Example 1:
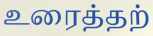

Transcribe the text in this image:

உரைத்தற்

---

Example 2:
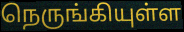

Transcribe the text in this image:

நெருங்கியுள்ள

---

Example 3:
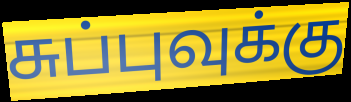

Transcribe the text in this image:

சுப்புவுக்கு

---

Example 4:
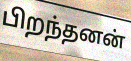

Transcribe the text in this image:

பிறந்தனன்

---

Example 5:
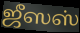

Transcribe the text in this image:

ஜீஸஸ்